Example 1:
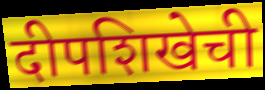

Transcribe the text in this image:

दीपशिखेची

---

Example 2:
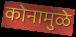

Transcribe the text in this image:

कोनामुळे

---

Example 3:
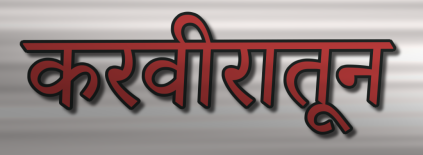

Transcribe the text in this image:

करवीरातून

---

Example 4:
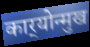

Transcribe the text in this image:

कार्योन्मुख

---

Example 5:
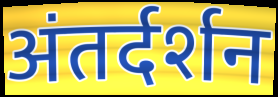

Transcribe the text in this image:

अंतर्दर्शन